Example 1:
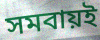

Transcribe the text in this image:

সমবায়ই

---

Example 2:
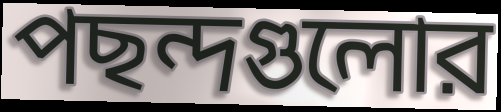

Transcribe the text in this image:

পছন্দগুলোর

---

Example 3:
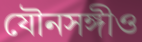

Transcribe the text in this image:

যৌনসঙ্গীও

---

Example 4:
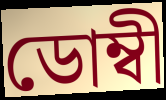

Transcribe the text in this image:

ডোম্বী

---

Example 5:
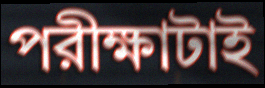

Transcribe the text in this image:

পরীক্ষাটাই